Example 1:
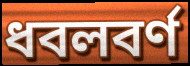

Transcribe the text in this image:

ধবলবর্ণ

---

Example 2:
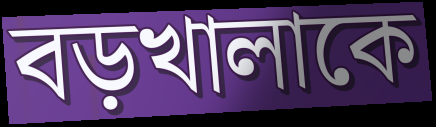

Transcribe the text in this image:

বড়খালাকে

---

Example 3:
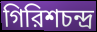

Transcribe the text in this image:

গিরিশচন্দ্র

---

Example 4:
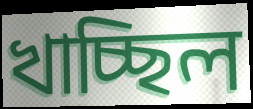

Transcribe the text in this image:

খাচ্ছিল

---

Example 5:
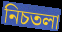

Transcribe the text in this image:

নিচতলা